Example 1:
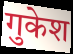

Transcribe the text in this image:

गुकेश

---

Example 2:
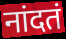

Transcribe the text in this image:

नांदतं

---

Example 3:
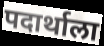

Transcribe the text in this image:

पदार्थाला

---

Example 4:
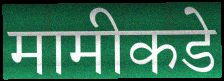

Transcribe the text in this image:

मामीकडे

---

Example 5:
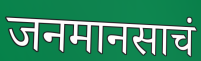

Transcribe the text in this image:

जनमानसाचं